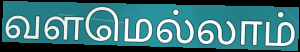
வளமெல்லாம்